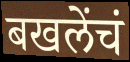
बखलेंचं